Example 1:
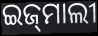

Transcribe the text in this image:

ଇଜ୍‌ମାଲୀ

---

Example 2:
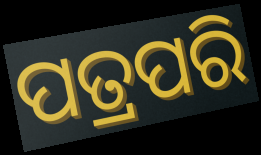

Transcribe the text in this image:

ପତ୍ରପରି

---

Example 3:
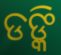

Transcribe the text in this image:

ଡଙ୍କି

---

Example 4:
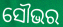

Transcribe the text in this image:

ସୌଭର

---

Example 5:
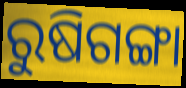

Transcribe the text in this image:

ରୁଷିଗଙ୍ଗା